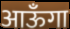
आऊँगा